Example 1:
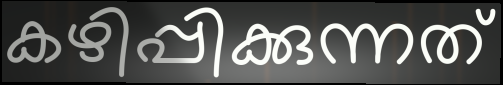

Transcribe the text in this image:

കഴിപ്പിക്കുന്നത്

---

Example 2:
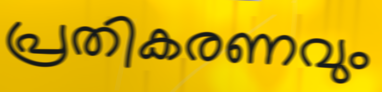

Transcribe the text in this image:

പ്രതികരണവും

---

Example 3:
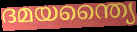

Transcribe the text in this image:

ദമയന്ത്യൈ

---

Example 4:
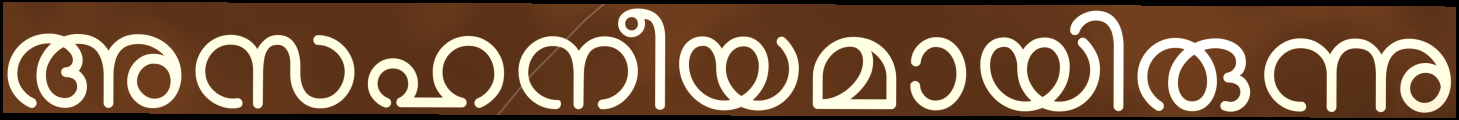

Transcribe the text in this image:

അസഹനീയമായിരുന്നു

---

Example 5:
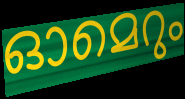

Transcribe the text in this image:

ഓമെറും